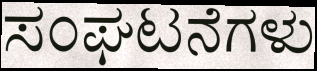
ಸಂಘಟನೆಗಳು